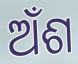
ଅଁଶ